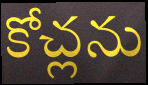
కోచ్లను